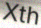
Xth